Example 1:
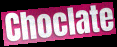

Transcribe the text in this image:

Choclate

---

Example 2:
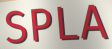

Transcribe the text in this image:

SPLA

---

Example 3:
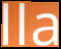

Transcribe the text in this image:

IIa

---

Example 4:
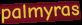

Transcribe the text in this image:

palmyras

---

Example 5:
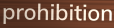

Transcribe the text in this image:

prohibition